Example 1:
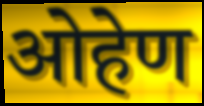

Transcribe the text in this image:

ओहेण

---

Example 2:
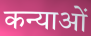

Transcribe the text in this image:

कन्‍याओं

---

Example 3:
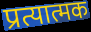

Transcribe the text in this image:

प्रत्यात्मक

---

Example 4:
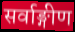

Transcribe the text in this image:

सर्वाङ्गीण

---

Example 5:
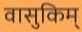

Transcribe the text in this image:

वासुकिम्